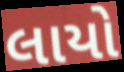
લાયો